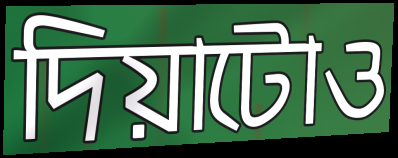
দিয়াটোও